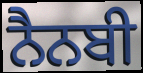
ਨੈਨਬੀ